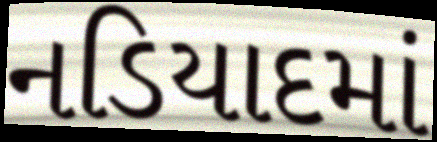
નડિયાદમાં